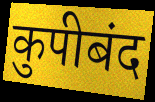
कुपीबंद